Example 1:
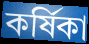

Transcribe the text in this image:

কর্ষিকা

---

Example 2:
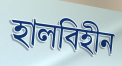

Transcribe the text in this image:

হালবিহীন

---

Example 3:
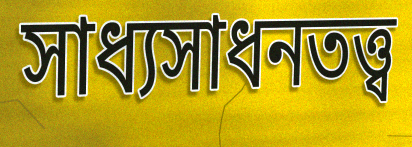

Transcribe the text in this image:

সাধ্যসাধনতত্ত্ব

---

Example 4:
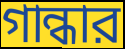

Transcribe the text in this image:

গান্ধার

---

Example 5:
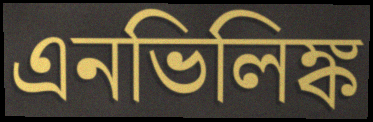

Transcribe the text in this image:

এনভিলিঙ্ক